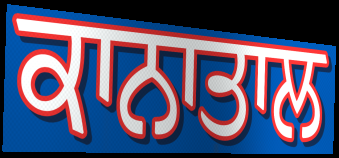
ਕਾਨਾਤਾਲ